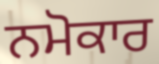
ਨਮੋਕਾਰ